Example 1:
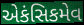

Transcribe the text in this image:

એકંસિકમેવ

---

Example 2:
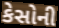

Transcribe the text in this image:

કેસોની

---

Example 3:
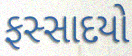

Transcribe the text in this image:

ફસ્સાદયો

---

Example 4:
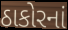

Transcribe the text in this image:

ઠાકોરનાં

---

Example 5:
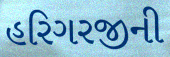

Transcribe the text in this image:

હરિગરજીની